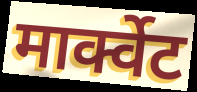
मार्क्वेट